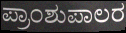
ಪ್ರಾಂಶುಪಾಲರ